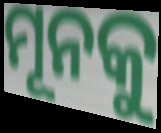
ମୂନକୁ